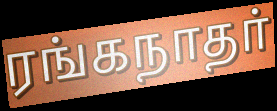
ரங்கநாதர்